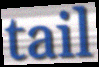
tail